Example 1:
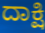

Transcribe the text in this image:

ದಾಕ್ಷಿ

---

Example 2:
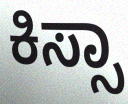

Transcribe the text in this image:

ಕಿಸ್ಸಾ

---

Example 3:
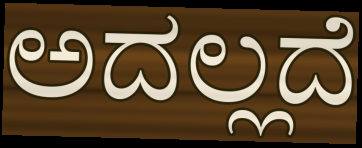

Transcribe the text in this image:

ಅದಲ್ಲದೆ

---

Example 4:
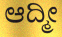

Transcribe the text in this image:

ಆದ್ಮೀ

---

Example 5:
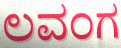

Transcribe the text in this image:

ಲವಂಗ